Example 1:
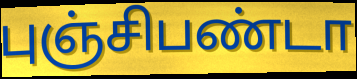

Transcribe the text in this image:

புஞ்சிபண்டா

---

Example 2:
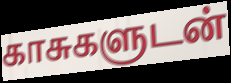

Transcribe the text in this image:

காசுகளுடன்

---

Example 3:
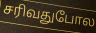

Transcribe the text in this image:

சரிவதுபோல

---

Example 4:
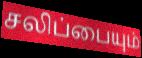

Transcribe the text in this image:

சலிப்பையும்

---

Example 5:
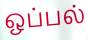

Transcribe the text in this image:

ஒப்பல்